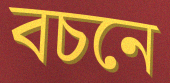
বচনে